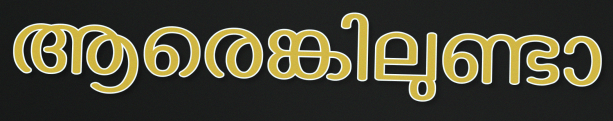
ആരെങ്കിലുണ്ടാ